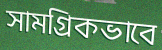
সামগ্রিকভাবে